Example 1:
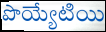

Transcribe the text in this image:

పొయ్యేటియి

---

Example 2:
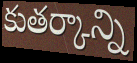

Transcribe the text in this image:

కుతర్కాన్ని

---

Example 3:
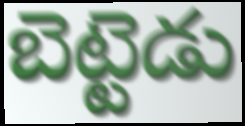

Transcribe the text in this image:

బెట్టెడు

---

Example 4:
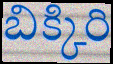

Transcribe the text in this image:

బిక్కిరి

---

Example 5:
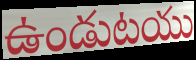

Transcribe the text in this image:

ఉండుటయు